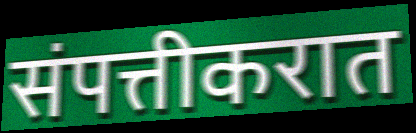
संपत्तीकरात